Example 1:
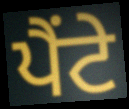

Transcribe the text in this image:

ਪੈਂਟੇ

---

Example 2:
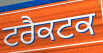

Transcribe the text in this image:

ਟਰੈਕਟਕ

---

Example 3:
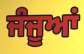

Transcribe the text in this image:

ਜੰਜੂਆਂ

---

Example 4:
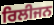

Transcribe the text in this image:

ਰਿਲੀਜਨ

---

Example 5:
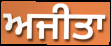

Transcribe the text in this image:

ਅਜੀਤਾ